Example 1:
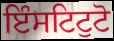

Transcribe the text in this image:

ਇੰਸਟਿਟੁਟੋ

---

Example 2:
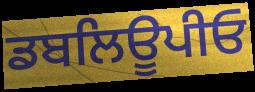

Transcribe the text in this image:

ਡਬਲਿਊਪੀਓ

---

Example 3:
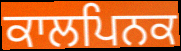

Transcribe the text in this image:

ਕਾਲਪਿਨਕ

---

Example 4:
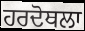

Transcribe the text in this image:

ਹਰਦੋਥਲਾ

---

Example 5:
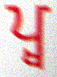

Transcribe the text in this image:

ਪ੍ਥ